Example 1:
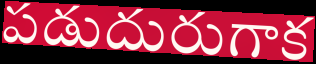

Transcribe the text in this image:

పడుదురుగాక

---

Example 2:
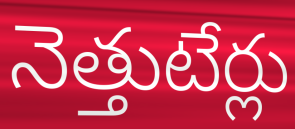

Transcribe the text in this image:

నెత్తుటేర్లు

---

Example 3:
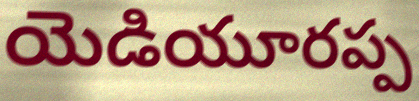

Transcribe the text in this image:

యెడియూరప్ప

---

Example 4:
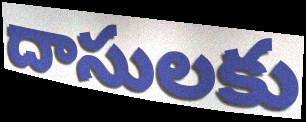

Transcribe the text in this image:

దాసులకు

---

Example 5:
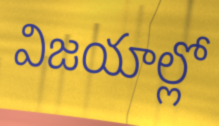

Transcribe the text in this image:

విజయాల్లో